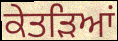
ਕੇਤੜਿਆਂ